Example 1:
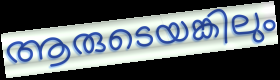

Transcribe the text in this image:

ആരുടെയങ്കിലും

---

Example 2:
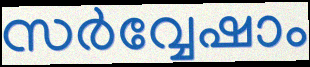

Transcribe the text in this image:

സർവ്വേഷാം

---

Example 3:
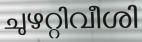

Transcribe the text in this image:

ചുഴറ്റിവീശി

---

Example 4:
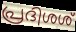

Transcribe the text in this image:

പ്രദിശശ്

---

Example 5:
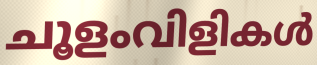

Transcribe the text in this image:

ചൂളംവിളികൾ